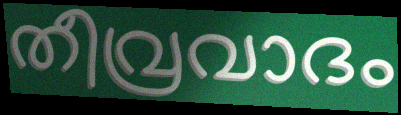
തീവ്രവാദം